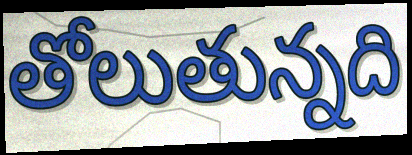
తోలుతున్నది